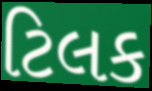
ટિલક